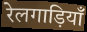
रेलगाड़ियाँ